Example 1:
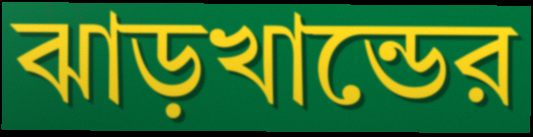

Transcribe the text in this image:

ঝাড়খান্ডের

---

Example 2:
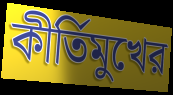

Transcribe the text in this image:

কীর্তিমুখের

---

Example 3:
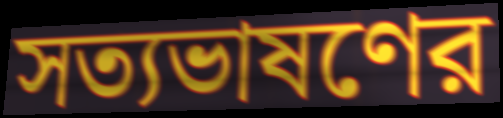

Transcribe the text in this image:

সত্যভাষণের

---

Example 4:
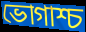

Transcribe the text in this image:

ভোগাশ্চ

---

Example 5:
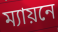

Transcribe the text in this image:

ম্যায়নে